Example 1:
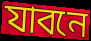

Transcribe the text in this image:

যাবনে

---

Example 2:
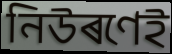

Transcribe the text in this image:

নিউৰণেই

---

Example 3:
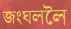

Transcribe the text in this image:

জংঘললৈ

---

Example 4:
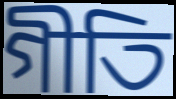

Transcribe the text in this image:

গীতি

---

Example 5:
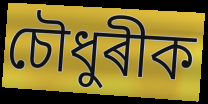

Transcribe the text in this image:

চৌধুৰীক